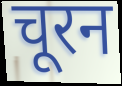
चूरन